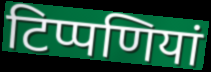
टिप्‍पणियां